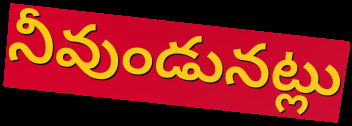
నీవుండునట్లు